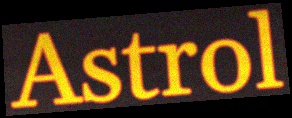
Astrol